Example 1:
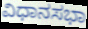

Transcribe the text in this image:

ವಿಧಾನಸಭಾ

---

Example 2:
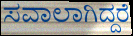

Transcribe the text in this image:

ಸವಾಲಾಗಿದ್ದರೆ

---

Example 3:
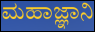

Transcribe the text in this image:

ಮಹಾಜ್ಞಾನಿ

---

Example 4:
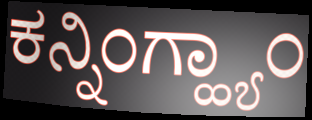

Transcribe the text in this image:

ಕನ್ನಿಂಗ್ಹ್ಯಾಂ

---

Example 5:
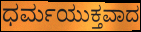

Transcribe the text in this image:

ಧರ್ಮಯುಕ್ತವಾದ